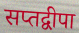
सप्तद्वीपा